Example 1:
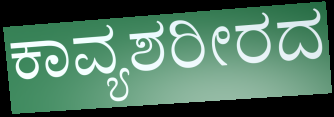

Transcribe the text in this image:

ಕಾವ್ಯಶರೀರದ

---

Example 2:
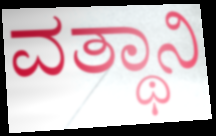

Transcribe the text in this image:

ವತ್ಥಾನಿ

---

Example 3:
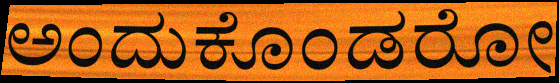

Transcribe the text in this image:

ಅಂದುಕೊಂಡರೋ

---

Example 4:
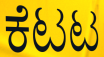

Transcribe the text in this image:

ಕೆಟಟ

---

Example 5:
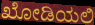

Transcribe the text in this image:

ಖೋಡಿಯಲಿ